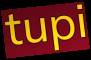
tupi